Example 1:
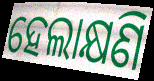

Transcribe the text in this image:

ହେଲାକ୍ଷଣି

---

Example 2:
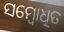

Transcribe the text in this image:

ସମ୍ବୋଧିତ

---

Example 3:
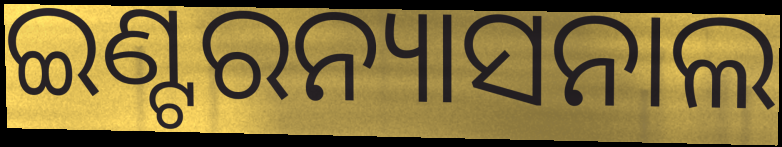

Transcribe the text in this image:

ଇଣ୍ଟରନ୍ୟାସନାଲ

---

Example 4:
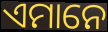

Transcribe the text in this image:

ଏମାନେ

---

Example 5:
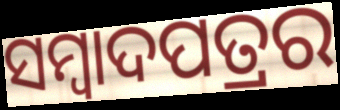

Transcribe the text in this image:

ସମ୍ବାଦପତ୍ରର